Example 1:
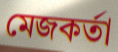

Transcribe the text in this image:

মেজকর্তা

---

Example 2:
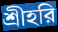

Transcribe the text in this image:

শ্রীহরি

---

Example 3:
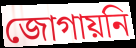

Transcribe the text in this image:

জোগায়নি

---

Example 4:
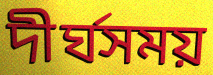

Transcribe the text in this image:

দীর্ঘসময়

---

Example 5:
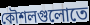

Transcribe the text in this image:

কৌশলগুলোতে